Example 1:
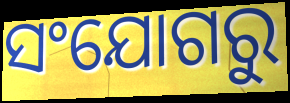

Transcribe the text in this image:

ସଂଯୋଗରୁ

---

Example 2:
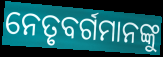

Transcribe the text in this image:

ନେତୃବର୍ଗମାନଙ୍କୁ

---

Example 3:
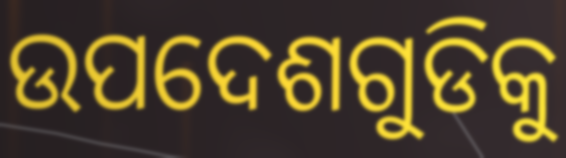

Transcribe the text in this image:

ଉପଦେଶଗୁଡିକୁ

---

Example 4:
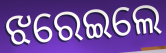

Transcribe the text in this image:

ଝରେଇଲେ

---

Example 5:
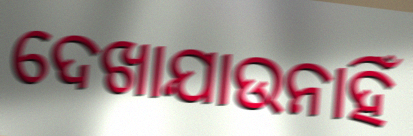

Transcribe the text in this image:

ଦେଖାଯାଉନାହିଁ